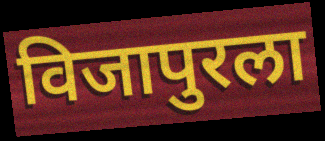
विजापुरला